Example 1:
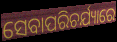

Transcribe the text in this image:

ସେବାପରିଚର୍ଯ୍ୟାରେ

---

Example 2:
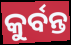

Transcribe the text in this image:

କୁର୍ବନ୍ତ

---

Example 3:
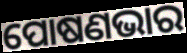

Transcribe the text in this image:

ପୋଷଣଭାର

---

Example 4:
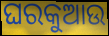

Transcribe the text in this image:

ଘରକୁଆଉ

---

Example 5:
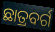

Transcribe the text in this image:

ଛାତ୍ରବର୍ଗ